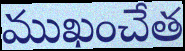
ముఖంచేత